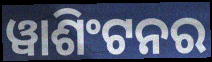
ୱାଶିଂଟନର